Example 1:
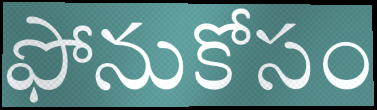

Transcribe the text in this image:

ఫోనుకోసం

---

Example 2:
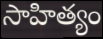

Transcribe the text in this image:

సాహిత్యం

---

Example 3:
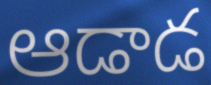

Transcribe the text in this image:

ఆడాడ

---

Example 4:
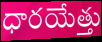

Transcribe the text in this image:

ధారయేత్తు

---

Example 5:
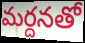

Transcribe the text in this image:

మర్దనతో